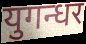
युगन्धर